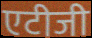
एटीजी